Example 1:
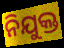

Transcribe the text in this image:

ନିଯୁକ୍ତ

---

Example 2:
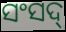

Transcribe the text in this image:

ସଂସଦ୍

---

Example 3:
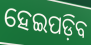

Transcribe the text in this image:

ହେଇପଡ଼ିବ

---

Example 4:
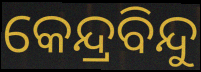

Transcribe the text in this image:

କେନ୍ଦ୍ରବିନ୍ଦୁ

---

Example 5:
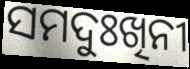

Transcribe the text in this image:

ସମଦୁଃଖିନୀ